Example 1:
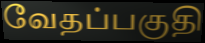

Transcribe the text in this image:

வேதப்பகுதி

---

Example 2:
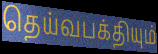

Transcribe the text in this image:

தெய்வபக்தியும்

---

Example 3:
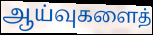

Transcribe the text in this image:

ஆய்வுகளைத்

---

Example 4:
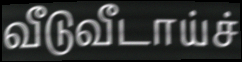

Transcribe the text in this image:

வீடுவீடாய்ச்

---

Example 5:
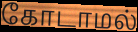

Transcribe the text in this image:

கோடாமல்